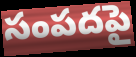
సంపదపై